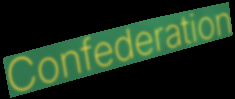
Confederation